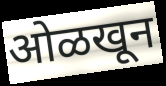
ओळखून